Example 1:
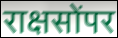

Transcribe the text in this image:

राक्षसोंपर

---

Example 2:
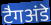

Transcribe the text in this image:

टैगअंडे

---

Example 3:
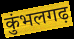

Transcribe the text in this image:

कुंभलगढ़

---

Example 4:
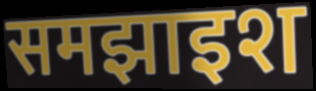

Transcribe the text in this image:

समझाइश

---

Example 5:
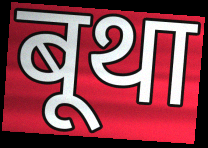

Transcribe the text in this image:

बूथा